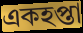
একহপ্তা